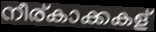
നീര്കാക്കകള്